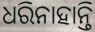
ଧରିନାହାନ୍ତି